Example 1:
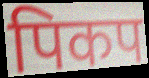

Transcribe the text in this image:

पिकप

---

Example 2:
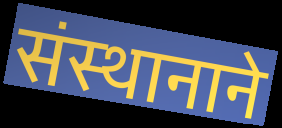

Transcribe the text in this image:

संस्थानाने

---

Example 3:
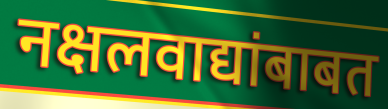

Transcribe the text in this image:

नक्षलवाद्यांबाबत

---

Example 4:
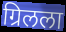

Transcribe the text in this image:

ग्रिलला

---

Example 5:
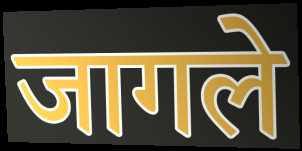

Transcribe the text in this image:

जागले